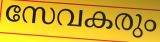
സേവകരും